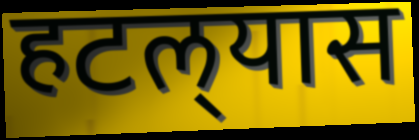
हटल्यास